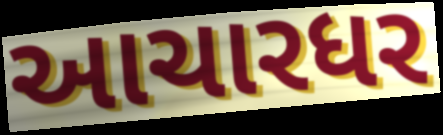
આચારધર